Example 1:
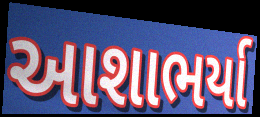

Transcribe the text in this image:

આશાભર્યા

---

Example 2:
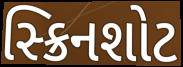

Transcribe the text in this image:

સ્ક્રિનશોટ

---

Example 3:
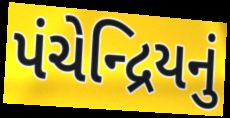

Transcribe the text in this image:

પંચેન્દ્રિયનું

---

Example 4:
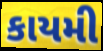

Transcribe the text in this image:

કાયમી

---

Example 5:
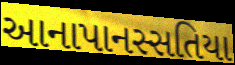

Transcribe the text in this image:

આનાપાનસ્સતિયા